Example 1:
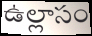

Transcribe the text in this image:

ఉల్లాసం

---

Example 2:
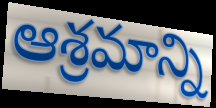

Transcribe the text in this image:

ఆశ్రమాన్ని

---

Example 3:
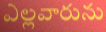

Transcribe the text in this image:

ఎల్లవారును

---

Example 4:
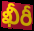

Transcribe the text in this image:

ఖీరీ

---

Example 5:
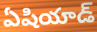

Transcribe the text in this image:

ఏషియాడ్